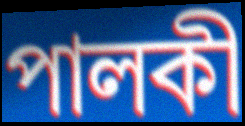
পালকী